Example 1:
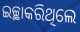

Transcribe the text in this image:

ଇଚ୍ଛାକରିଥିଲେ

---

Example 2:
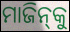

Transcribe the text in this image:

ମାଜିନ୍‌କୁ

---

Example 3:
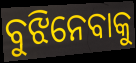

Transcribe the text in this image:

ବୁଝିନେବାକୁ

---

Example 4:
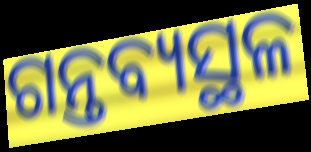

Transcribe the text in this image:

ଗନ୍ତବ୍ୟସ୍ଥଳ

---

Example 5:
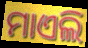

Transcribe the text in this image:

ମାଏଲି